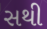
સથી